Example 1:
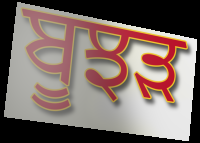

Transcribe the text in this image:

ਬੂਝੜ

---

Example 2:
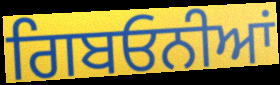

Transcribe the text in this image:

ਗਿਬਓਨੀਆਂ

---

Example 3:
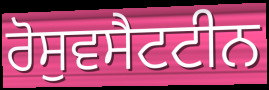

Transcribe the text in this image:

ਰੋਸੁਵਸੈਟਟੀਨ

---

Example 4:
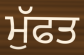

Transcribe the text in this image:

ਮੁੱਫਤ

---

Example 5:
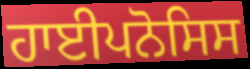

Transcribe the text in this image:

ਹਾਈਪਨੋਸਿਸ